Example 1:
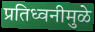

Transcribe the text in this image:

प्रतिध्वनीमुळे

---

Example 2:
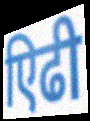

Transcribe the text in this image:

एिढी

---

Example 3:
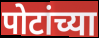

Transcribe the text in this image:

पोटांच्या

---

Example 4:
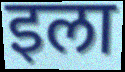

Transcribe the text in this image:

इला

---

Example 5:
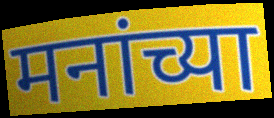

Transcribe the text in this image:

मनांच्या